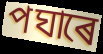
পঘাৰে